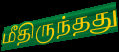
மீதிருந்தது